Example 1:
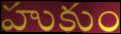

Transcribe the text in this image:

హుకుం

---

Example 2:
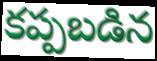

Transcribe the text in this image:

కప్పబడిన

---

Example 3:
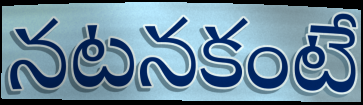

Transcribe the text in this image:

నటనకంటే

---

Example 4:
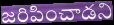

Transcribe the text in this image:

జరిపించాడని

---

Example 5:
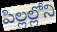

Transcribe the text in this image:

పిల్లల్లోని